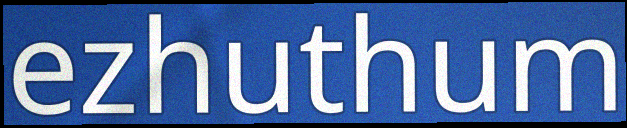
ezhuthum